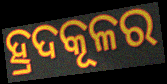
ହ୍ରଦକୂଳର